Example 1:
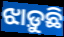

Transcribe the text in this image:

ଝାଡ଼ୁଛି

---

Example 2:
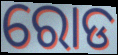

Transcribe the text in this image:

ରୋଡ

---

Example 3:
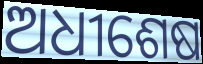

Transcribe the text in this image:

ଅଧୀଶେଷ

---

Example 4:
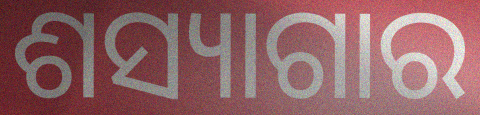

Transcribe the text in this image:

ଶସ୍ୟାଗାର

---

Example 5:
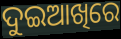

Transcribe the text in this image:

ଦୁଇଆଖିରେ